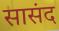
सासंद